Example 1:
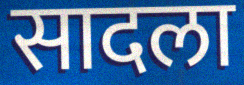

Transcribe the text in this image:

सादला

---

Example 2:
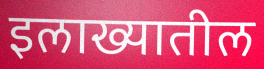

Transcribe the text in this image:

इलाख्यातील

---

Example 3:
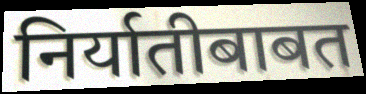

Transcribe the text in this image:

निर्यातीबाबत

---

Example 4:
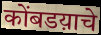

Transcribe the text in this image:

कोंबडय़ाचे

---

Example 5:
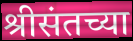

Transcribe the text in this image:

श्रीसंतच्या